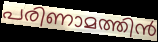
പരിണാമത്തിൻ